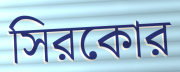
সিরকোর